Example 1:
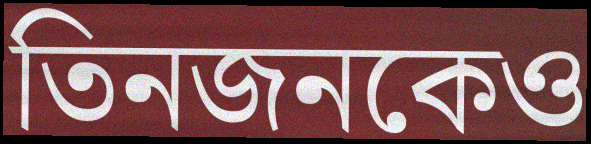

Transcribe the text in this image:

তিনজনকেও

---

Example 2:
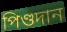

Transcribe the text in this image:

পিণ্ডদান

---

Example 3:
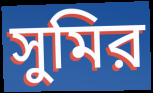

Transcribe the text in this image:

সুমির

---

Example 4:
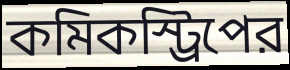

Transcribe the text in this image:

কমিকস্ট্রিপের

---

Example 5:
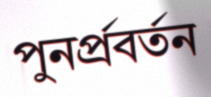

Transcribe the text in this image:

পুনর্প্রবর্তন